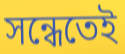
সন্ধেতেই